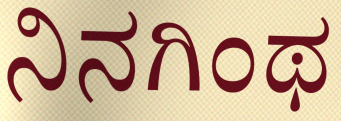
ನಿನಗಿಂಥ